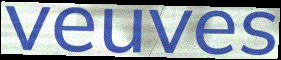
veuves